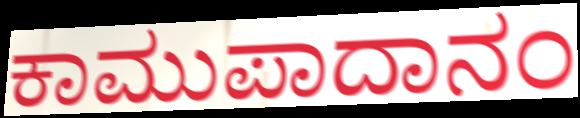
ಕಾಮುಪಾದಾನಂ